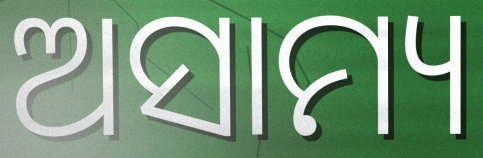
ଅସାମ୍ୟ